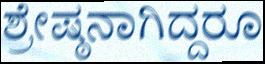
ಶ್ರೇಷ್ಠನಾಗಿದ್ದರೂ